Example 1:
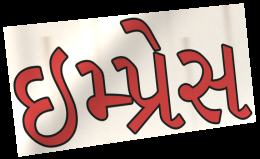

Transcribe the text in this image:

ઇમ્પ્રેસ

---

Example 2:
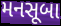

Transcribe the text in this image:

મનસૂબા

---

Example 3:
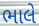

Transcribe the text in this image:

ભાલે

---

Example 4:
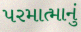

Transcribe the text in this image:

પરમાત્માનું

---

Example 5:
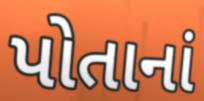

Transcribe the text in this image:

પોતાનાં